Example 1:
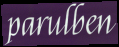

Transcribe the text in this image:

parulben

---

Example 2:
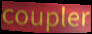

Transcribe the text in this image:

coupler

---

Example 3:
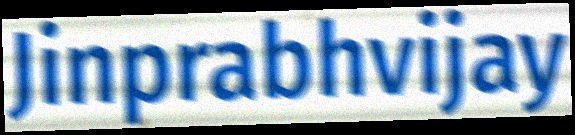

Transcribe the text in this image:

Jinprabhvijay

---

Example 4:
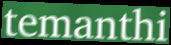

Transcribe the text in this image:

temanthi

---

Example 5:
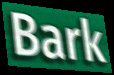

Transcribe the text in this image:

Bark